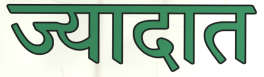
ज्यादात